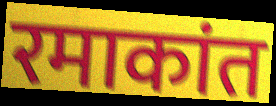
रमाकांत